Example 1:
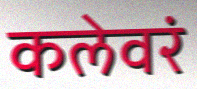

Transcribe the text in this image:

कलेवरं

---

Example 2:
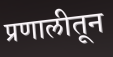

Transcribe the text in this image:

प्रणालीतून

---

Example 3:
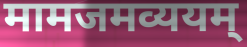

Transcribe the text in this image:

मामजमव्ययम्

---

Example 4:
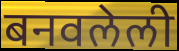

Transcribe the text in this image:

बनवलेली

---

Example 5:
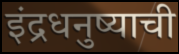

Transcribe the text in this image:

इंद्रधनुष्याची